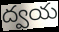
ద్వయ